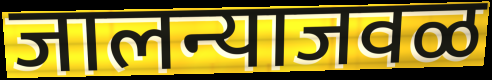
जालन्याजवळ